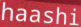
haashi